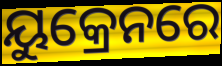
ୟୁକ୍ରେନରେ